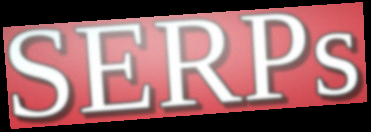
SERPs